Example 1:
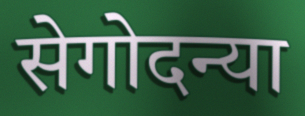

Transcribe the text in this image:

सेगोदन्या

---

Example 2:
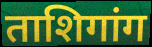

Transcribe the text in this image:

ताशिगांग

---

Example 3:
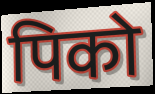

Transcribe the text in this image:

पिको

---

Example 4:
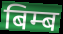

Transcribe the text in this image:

बिम्ब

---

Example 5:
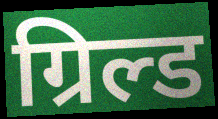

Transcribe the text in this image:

ग्रिल्ड